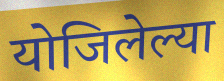
योजिलेल्या